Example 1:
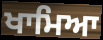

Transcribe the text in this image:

ਖਾਮਿਆ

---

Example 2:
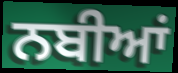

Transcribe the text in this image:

ਨਬੀਆਂ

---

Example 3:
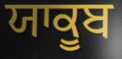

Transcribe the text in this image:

ਯਾਕੂਬ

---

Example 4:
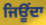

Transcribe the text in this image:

ਜਿਊਂਦਾ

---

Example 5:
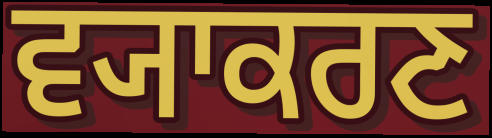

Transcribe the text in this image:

ਵ੍ਯਾਕਰਣ